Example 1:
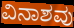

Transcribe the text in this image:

ವಿನಾಶವು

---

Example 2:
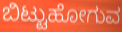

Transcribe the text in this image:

ಬಿಟ್ಟುಹೋಗುವ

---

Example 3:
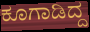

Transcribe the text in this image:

ಕೂಗಾಡಿದ್ದ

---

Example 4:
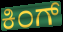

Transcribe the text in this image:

ಕಿಂಗ್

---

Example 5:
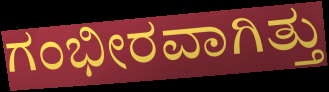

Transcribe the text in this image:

ಗಂಭೀರವಾಗಿತ್ತು